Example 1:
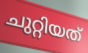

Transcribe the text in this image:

ചുറ്റിയത്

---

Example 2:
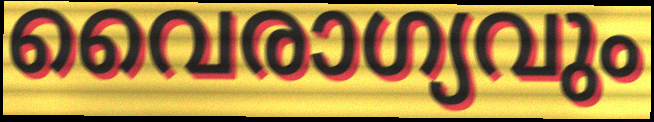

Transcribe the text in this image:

വൈരാഗ്യവും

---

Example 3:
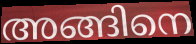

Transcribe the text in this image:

അങ്ങിനെ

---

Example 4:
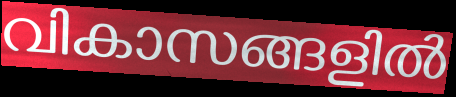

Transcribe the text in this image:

വികാസങ്ങളിൽ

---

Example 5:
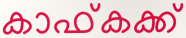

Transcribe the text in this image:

കാഫ്കക്ക്